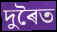
দুৰৈত